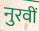
नुरवीं